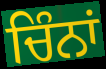
ਚਿੰਨਾਂ